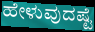
ಹೇಳುವುದಷ್ಟೆ